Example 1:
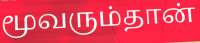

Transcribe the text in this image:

மூவரும்தான்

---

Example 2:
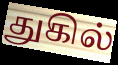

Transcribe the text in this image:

துகில்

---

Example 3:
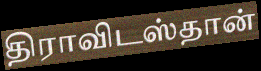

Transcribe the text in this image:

திராவிடஸ்தான்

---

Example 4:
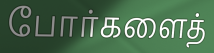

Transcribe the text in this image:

போர்களைத்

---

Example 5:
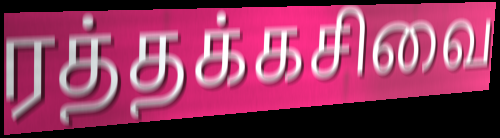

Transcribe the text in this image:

ரத்தக்கசிவை